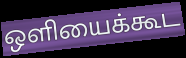
ஒளியைக்கூட